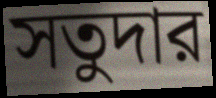
সতুদার